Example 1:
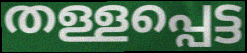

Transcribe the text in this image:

തള്ളപ്പെട്ട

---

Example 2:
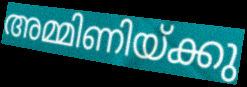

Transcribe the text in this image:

അമ്മിണിയ്ക്കു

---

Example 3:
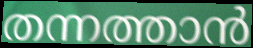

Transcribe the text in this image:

തന്നത്താൻ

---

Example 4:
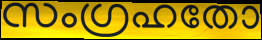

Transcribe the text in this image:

സംഗ്രഹതോ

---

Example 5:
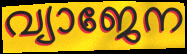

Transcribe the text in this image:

വ്യാജേന